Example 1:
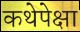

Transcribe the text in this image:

कथेपेक्षा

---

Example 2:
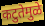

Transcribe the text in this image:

कटुतेमुळे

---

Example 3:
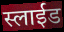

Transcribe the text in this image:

स्लाईड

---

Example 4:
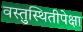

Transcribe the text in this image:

वस्तुस्थितीपेक्षा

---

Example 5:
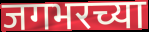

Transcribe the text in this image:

जगभरच्या